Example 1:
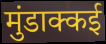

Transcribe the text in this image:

मुंडाक्कई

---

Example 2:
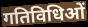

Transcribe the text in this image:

गतिविधिओं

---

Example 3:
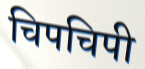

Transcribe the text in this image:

चिपचिपी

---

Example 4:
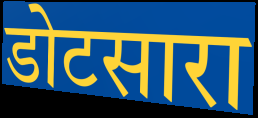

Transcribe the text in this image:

डोटसारा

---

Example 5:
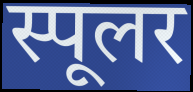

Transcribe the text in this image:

स्पूलर